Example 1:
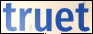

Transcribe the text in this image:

truet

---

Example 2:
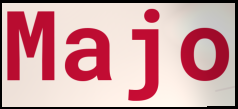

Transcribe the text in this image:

Majo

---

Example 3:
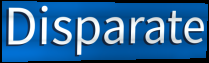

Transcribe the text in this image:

Disparate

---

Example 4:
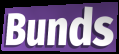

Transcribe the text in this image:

Bunds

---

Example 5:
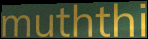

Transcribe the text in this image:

muththi